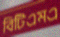
বিটিএমএ